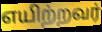
எயிற்றவர்